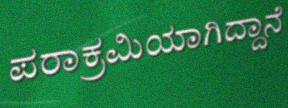
ಪರಾಕ್ರಮಿಯಾಗಿದ್ದಾನೆ